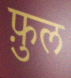
फ़ुल